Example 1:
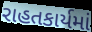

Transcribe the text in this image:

રાહતકાર્યમાં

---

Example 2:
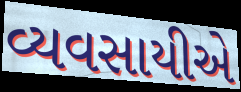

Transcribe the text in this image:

વ્યવસાયીએ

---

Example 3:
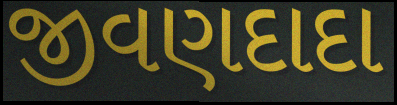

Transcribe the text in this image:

જીવણદાદા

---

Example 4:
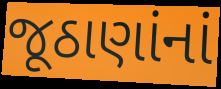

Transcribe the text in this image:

જૂઠાણાંનાં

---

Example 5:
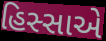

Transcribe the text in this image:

હિસ્સાએ